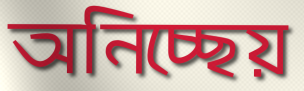
অনিচ্ছেয়